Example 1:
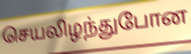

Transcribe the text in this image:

செயலிழந்துபோன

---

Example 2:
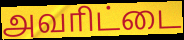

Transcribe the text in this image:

அவரிட்டை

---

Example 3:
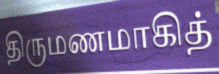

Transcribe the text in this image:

திருமணமாகித்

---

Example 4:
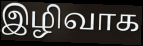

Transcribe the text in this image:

இழிவாக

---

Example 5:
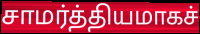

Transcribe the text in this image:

சாமர்த்தியமாகச்